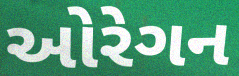
ઓરેગન